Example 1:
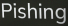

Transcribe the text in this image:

Pishing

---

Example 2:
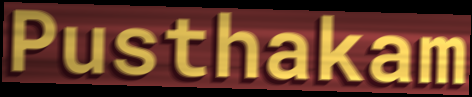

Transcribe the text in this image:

Pusthakam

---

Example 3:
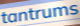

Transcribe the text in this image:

tantrums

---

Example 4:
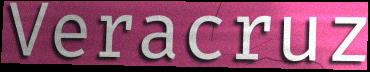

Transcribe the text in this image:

Veracruz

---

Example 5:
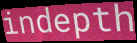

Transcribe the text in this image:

indepth